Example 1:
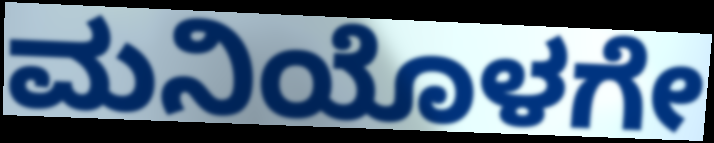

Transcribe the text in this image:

ಮನಿಯೊಳಗೇ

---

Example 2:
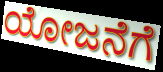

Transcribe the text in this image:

ಯೋಜನೆಗೆ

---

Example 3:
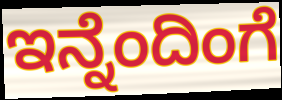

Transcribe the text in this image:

ಇನ್ನೆಂದಿಂಗೆ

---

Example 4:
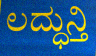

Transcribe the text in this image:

ಲದ್ಧುನ್ತಿ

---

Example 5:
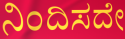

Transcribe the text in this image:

ನಿಂದಿಸದೇ